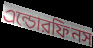
এন্ডোরফিনস